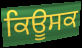
ਕਿਊਸਕ